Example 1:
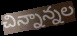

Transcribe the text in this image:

చిన్నాన్నల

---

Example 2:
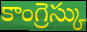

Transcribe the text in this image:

కాంగ్రెస్కు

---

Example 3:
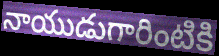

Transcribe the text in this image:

నాయుడుగారింటికి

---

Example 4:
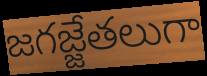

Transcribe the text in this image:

జగజ్జేతలుగా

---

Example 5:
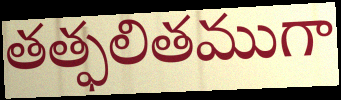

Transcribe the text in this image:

తత్ఫలితముగా